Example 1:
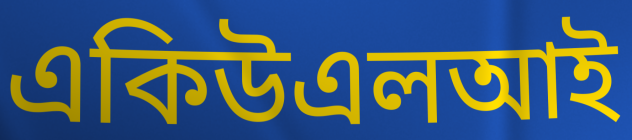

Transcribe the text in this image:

একিউএলআই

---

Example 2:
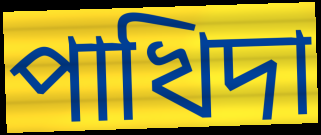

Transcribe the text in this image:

পাখিদা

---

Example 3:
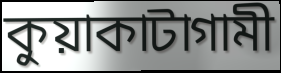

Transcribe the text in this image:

কুয়াকাটাগামী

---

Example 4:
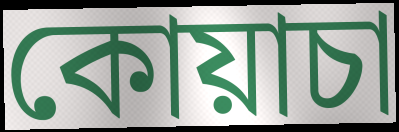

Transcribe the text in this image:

কোয়াচা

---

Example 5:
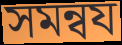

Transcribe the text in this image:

সমন্বয